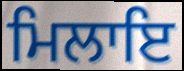
ਮਿਲਾਇ